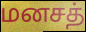
மனசத்